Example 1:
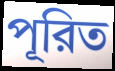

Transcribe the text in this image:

পূরিত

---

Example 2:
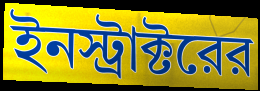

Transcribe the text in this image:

ইনস্ট্রাক্টরের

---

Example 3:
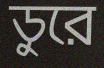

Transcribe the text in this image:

ডুরে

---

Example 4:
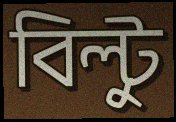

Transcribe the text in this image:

বিল্টু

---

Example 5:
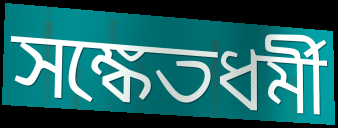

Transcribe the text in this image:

সঙ্কেতধর্মী